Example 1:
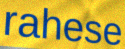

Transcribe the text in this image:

rahese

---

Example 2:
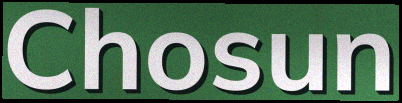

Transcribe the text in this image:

Chosun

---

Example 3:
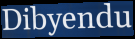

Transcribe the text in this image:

Dibyendu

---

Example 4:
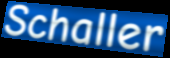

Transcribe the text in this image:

Schaller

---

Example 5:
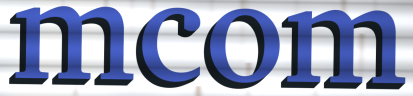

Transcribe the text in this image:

mcom